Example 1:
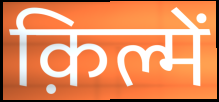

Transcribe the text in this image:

क़िल्में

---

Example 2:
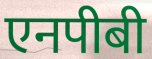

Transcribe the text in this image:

एनपीबी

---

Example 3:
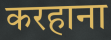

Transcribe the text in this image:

करहाना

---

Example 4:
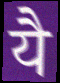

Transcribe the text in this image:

यै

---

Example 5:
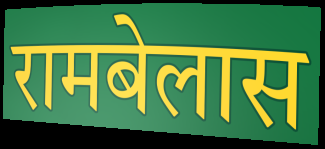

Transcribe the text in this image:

रामबेलास